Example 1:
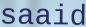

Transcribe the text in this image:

saaid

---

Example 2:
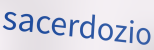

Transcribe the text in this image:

sacerdozio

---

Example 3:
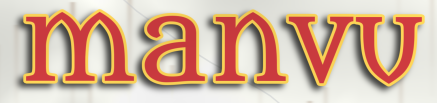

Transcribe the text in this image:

manvu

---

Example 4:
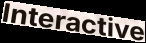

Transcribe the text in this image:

Interactive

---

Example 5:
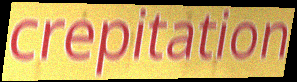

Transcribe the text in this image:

crepitation